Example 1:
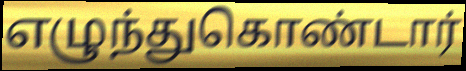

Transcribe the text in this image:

எழுந்துகொண்டார்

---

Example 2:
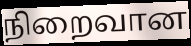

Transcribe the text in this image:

நிறைவான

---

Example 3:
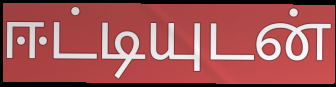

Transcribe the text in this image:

ஈட்டியுடன்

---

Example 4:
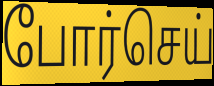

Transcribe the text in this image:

போர்செய்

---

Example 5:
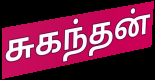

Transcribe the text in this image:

சுகந்தன்